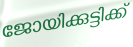
ജോയിക്കുട്ടിക്ക്